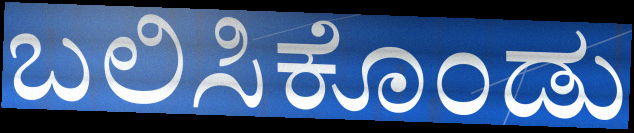
ಬಲಿಸಿಕೊಂಡು